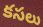
కసలు